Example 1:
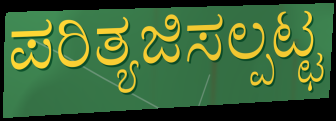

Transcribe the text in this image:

ಪರಿತ್ಯಜಿಸಲ್ಪಟ್ಟ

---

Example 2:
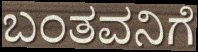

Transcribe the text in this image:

ಬಂತವನಿಗೆ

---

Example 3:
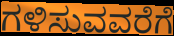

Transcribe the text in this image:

ಗಳಿಸುವವರೆಗೆ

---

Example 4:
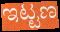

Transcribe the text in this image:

ಇಟ್ಟಣ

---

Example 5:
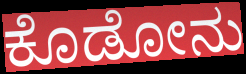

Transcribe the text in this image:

ಕೊಡೋನು